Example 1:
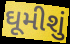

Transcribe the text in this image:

ઘૂમીશું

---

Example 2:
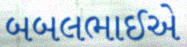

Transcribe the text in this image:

બબલભાઈએ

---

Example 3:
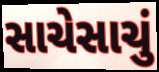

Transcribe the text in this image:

સાચેસાચું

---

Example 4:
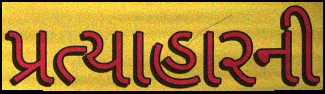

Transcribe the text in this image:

પ્રત્યાહારની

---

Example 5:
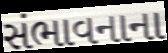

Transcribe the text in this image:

સંભાવનાના